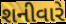
શનીવારે